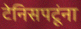
टेनिसपटूंना